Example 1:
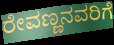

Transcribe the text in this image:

ರೇವಣ್ಣನವರಿಗೆ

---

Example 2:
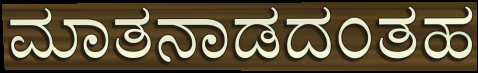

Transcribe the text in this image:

ಮಾತನಾಡದಂತಹ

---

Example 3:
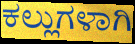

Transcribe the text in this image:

ಕಲ್ಲುಗಳಾಗಿ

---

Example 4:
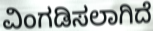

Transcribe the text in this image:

ವಿಂಗಡಿಸಲಾಗಿದೆ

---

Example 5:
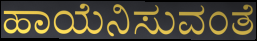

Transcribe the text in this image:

ಹಾಯೆನಿಸುವಂತೆ